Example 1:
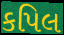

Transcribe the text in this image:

કપિલ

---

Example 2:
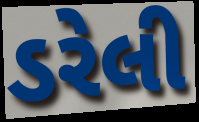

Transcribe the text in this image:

ડરેલી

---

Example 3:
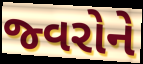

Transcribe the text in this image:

જ્વરોને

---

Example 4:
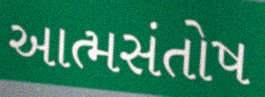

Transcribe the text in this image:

આત્મસંતોષ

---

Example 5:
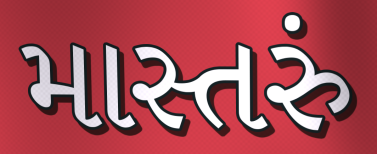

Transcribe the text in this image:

માસ્તરું